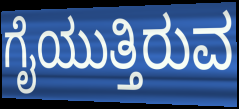
ಗೈಯುತ್ತಿರುವ